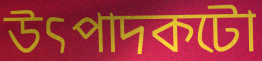
উৎপাদকটো